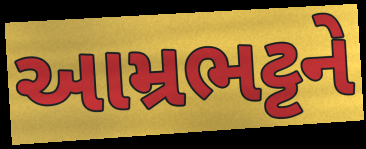
આમ્રભટ્ટને